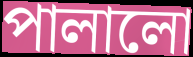
পালালো